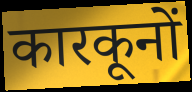
कारकूनों